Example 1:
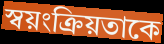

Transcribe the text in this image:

স্বয়ংক্রিয়তাকে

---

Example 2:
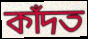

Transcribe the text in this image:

কাঁদত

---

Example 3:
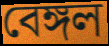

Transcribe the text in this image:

বেঙ্গল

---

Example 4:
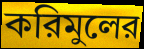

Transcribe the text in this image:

করিমুলের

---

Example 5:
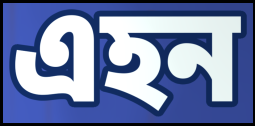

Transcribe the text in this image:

এহন